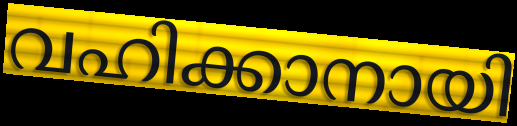
വഹിക്കാനായി